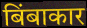
बिंबाकार